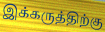
இக்கருத்திற்கு